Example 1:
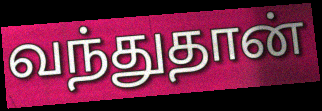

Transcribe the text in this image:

வந்துதான்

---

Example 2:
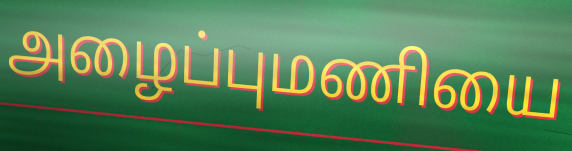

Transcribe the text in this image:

அழைப்புமணியை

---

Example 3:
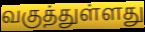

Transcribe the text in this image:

வகுத்துள்ளது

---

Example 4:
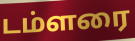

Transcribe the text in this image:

டம்ளரை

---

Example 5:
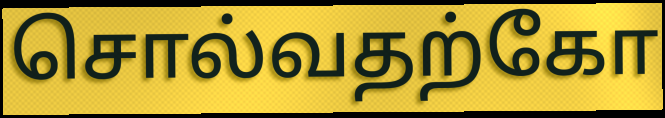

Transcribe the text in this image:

சொல்வதற்கோ